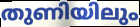
തുണിയിലും